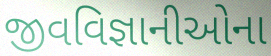
જીવવિજ્ઞાનીઓના